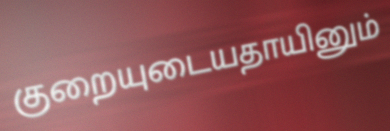
குறையுடையதாயினும்